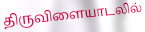
திருவிளையாடலில்